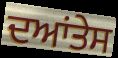
ਦਆਂਤੇਸ